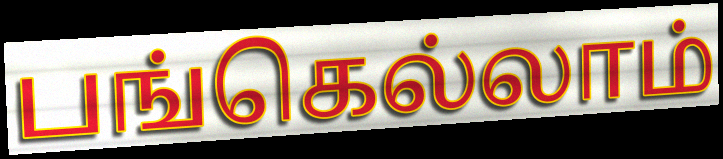
பங்கெல்லாம்